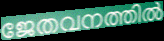
ജേതവനത്തിൽ